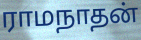
ராமநாதன்